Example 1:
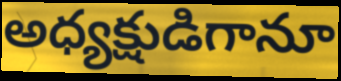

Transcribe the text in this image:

అధ్యక్షుడిగానూ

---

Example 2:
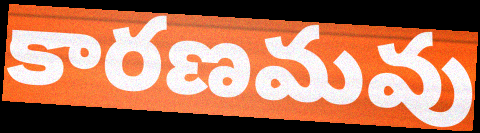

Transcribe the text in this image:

కారణమవు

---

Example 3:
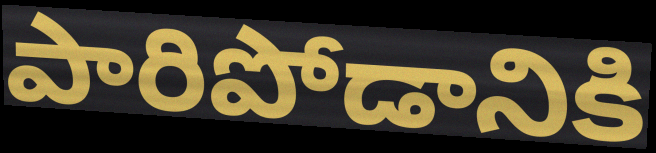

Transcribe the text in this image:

పారిపోడానికి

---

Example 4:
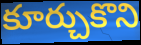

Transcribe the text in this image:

కూర్చుకొని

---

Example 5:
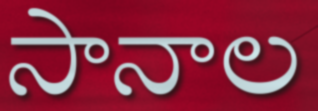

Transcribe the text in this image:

సానాల